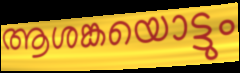
ആശങ്കയൊട്ടും